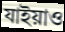
যাইয়াও